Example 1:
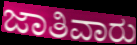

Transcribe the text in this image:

ಜಾತಿವಾರು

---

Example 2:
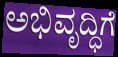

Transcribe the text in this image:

ಅಭಿವೃದ್ಧಿಗೆ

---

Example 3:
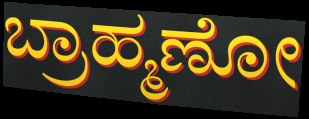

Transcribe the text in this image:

ಬ್ರಾಹ್ಮಣೋ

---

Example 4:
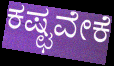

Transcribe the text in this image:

ಕಷ್ಟವೇಕೆ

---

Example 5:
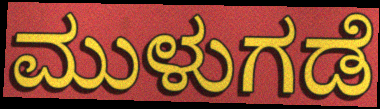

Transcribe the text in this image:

ಮುಳುಗಡೆ